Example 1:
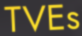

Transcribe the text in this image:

TVEs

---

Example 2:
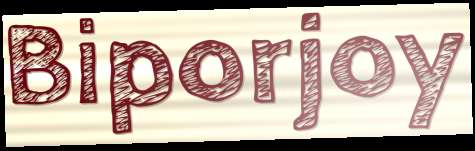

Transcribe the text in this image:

Biporjoy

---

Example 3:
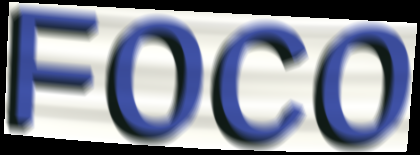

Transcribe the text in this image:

FOCO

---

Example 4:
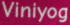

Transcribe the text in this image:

Viniyog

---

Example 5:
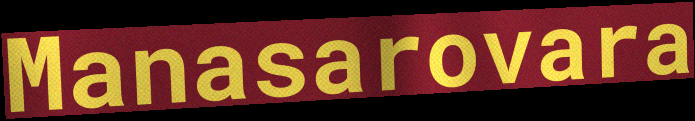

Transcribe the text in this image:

Manasarovara